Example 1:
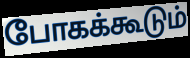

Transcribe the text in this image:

போகக்கூடும்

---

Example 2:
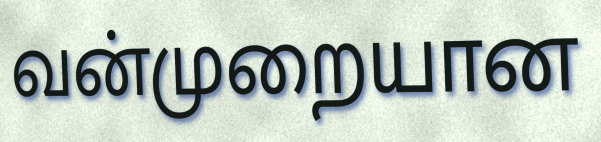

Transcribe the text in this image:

வன்முறையான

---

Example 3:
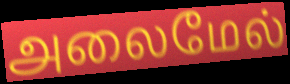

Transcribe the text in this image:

அலைமேல்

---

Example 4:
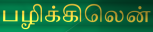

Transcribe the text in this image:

பழிக்கிலென்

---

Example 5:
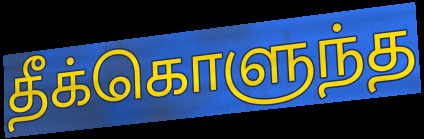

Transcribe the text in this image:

தீக்கொளுந்த